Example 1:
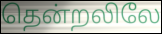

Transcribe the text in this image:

தென்றலிலே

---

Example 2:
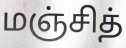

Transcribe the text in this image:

மஞ்சித்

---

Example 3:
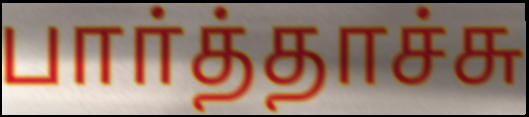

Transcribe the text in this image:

பார்த்தாச்சு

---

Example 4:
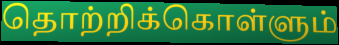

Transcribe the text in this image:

தொற்றிக்கொள்ளும்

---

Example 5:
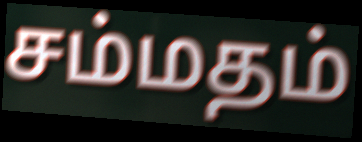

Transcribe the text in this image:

சம்மதம்